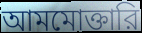
আমমোক্তারি